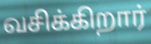
வசிக்கிறார்